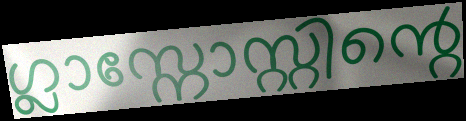
ഗ്ലാസ്നോസ്റ്റിന്റെ